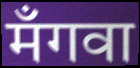
मँगवा